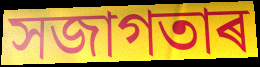
সজাগতাৰ